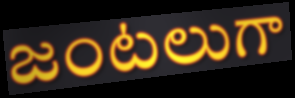
జంటలుగా